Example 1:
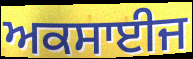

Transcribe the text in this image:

ਅਕਸਾਈਜ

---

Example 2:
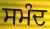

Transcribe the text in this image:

ਸਮੰਦ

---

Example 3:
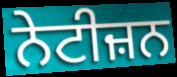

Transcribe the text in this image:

ਨੇਟੀਜ਼ਨ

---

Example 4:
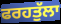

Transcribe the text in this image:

ਫਰਹਤੁੱਲਾ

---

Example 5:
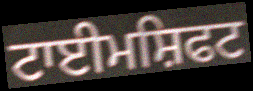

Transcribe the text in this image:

ਟਾਈਮਸ਼ਿਫਟ